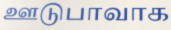
ஊடுபாவாக